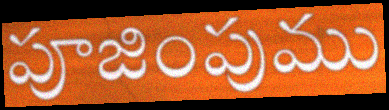
పూజింపుము